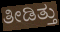
ತೀಡಿತ್ತು